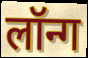
लॉन्ग